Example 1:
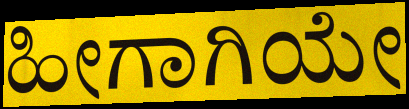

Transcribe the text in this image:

ಹೀಗಾಗಿಯೇ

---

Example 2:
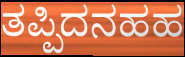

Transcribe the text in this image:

ತಪ್ಪಿದನಹಹ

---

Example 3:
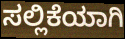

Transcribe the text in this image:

ಸಲ್ಲಿಕೆಯಾಗಿ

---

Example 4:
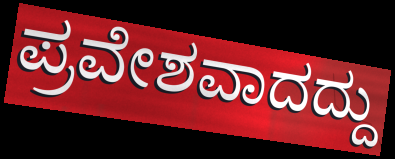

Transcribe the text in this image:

ಪ್ರವೇಶವಾದದ್ದು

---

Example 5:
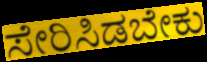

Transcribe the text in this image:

ಸೇರಿಸಿಡಬೇಕು